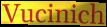
Vucinich